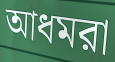
আধমরা